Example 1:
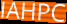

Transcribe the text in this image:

IAHPC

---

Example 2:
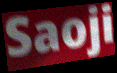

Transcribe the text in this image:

Saoji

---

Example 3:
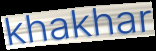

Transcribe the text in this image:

khakhar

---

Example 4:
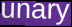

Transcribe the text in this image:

unary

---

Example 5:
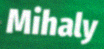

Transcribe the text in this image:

Mihaly